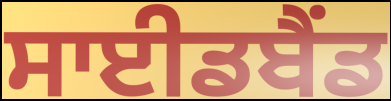
ਸਾਈਡਬੈਂਡ